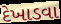
દેખાડવા